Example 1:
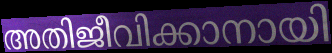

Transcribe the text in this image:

അതിജീവിക്കാനായി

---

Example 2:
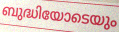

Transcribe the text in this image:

ബുദ്ധിയോടെയും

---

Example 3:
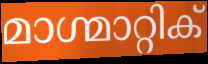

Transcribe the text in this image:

മാഗ്മാറ്റിക്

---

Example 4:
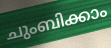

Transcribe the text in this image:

ചുംബിക്കാം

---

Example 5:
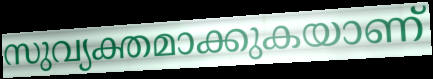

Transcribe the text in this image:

സുവ്യക്തമാക്കുകയാണ്